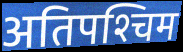
अतिपश्चिम